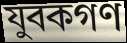
যুবকগণ